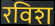
रविश